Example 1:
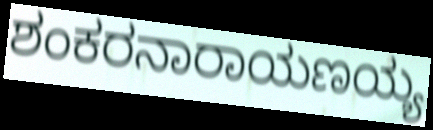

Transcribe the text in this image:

ಶಂಕರನಾರಾಯಣಯ್ಯ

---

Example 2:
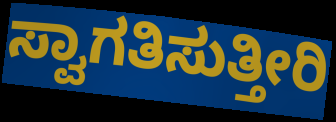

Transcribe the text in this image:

ಸ್ವಾಗತಿಸುತ್ತೀರಿ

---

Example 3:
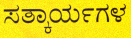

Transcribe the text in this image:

ಸತ್ಕಾರ್ಯಗಳ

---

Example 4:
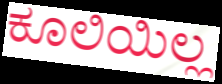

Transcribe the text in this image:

ಕೂಲಿಯಿಲ್ಲ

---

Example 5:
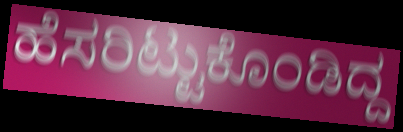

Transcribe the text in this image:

ಹೆಸರಿಟ್ಟುಕೊಂಡಿದ್ದ